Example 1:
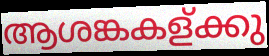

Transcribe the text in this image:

ആശങ്കകള്ക്കു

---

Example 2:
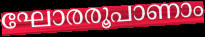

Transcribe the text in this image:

ഘോരരൂപാണാം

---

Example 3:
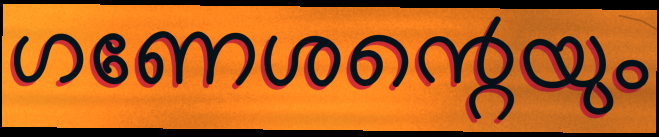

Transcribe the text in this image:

ഗണേശന്റെയും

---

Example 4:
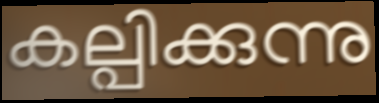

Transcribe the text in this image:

കല്പിക്കുന്നു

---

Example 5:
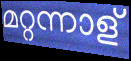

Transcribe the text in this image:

മറ്റന്നാള്